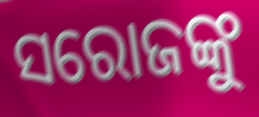
ସରୋଜଙ୍କୁ